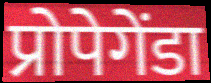
प्रोपेगेंडा